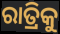
ରାତ୍ରିକୁ